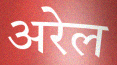
अरेल